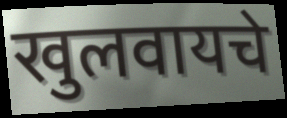
खुलवायचे